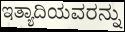
ಇತ್ಯಾದಿಯವರನ್ನು